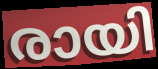
രായി